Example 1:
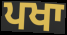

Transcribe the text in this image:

ਪਖਾ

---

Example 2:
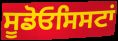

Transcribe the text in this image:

ਸੂਡੋਓਸਿਸਟਾਂ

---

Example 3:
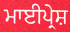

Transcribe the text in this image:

ਮਾਈਪ੍ਰੇਸ਼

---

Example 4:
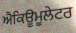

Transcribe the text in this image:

ਐਕਿਊਮੂਲੇਟਰ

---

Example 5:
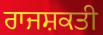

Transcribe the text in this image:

ਰਾਜਸ਼ਕਤੀ